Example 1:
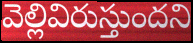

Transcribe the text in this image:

వెల్లివిరుస్తుందని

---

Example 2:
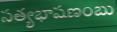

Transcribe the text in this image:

సత్యభాషణంబు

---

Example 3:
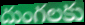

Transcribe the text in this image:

దుంగలకు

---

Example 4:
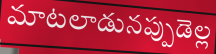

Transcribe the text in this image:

మాటలాడునప్పుడెల్ల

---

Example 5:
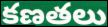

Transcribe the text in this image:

కణతలు